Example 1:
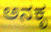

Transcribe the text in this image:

ಅನಕೃ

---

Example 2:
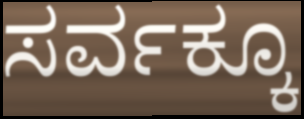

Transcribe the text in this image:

ಸರ್ವಕ್ಕೂ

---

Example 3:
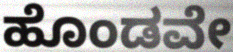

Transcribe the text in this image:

ಹೊಂಡವೇ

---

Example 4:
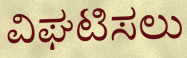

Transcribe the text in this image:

ವಿಘಟಿಸಲು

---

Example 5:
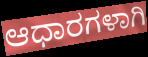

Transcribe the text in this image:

ಆಧಾರಗಳಾಗಿ